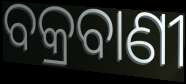
ବକ୍ରବାଣୀ